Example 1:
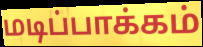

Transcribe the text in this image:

மடிப்பாக்கம்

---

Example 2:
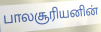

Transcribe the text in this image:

பாலசூரியனின்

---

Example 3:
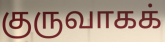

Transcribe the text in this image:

குருவாகக்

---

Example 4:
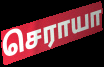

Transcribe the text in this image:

செராயா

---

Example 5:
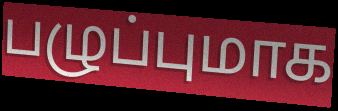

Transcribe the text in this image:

பழுப்புமாக